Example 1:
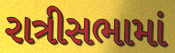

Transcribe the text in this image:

રાત્રીસભામાં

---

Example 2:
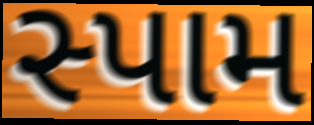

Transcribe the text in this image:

સ્પામ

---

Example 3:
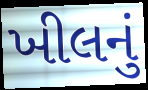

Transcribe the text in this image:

ખીલનું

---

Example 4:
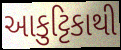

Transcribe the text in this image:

આકુટ્ટિકાથી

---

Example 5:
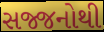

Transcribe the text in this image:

સજ્જનોથી